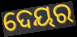
ଦେୟର